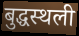
बुद्धस्थली